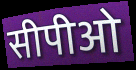
सीपीओ